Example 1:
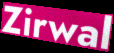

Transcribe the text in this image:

Zirwal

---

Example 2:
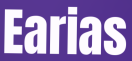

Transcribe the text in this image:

Earias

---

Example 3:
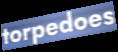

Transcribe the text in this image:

torpedoes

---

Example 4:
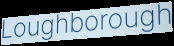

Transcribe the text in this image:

Loughborough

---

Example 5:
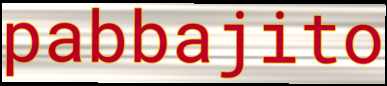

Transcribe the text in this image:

pabbajito